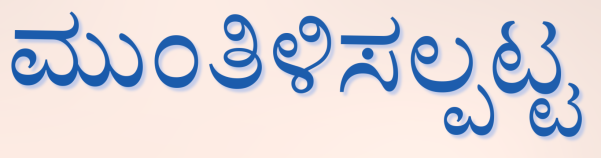
ಮುಂತಿಳಿಸಲ್ಪಟ್ಟ